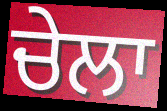
ਚੇਲਾ